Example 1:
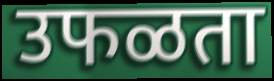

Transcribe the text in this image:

उफळता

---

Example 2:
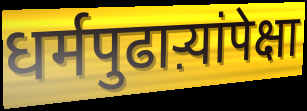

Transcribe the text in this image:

धर्मपुढाऱ्‍यांपेक्षा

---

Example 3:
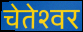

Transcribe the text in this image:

चेतेश्वर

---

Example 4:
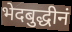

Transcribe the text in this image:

भेदबुद्धीनं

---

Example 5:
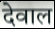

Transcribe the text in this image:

देवाल